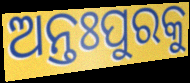
ଅନ୍ତଃପୁରକୁ